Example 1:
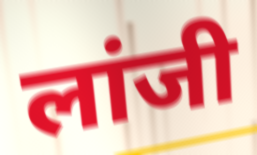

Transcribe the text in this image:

लांजी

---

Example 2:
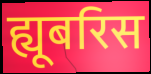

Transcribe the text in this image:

ह्यूबरिस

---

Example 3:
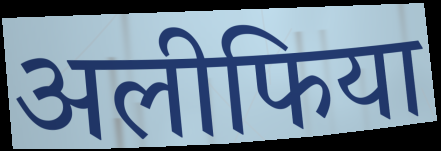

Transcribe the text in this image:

अलीफिया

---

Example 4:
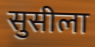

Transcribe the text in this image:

सुसीला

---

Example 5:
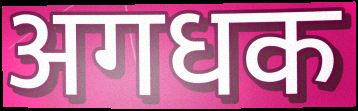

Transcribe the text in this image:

अगधक